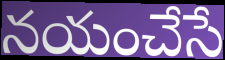
నయంచేసే